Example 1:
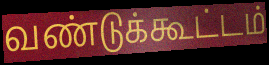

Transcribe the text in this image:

வண்டுக்கூட்டம்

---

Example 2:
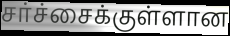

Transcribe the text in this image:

சர்ச்சைக்குள்ளான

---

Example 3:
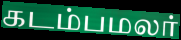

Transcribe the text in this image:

கடம்பமலர்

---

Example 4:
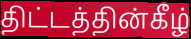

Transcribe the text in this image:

திட்டத்தின்கீழ்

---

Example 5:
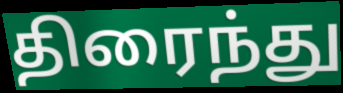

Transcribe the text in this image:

திரைந்து